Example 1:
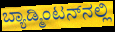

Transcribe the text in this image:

ಬ್ಯಾಡ್ಮಿಂಟನ್‌ನಲ್ಲಿ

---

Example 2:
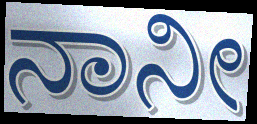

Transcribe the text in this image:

ನಾನೀ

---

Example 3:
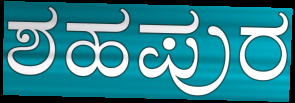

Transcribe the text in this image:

ಶಹಪುರ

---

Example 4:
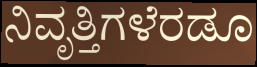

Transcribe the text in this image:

ನಿವೃತ್ತಿಗಳೆರಡೂ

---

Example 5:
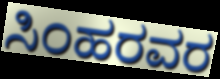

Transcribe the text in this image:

ಸಿಂಹರವರ